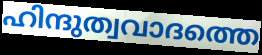
ഹിന്ദുത്വവാദത്തെ